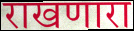
राखणारा